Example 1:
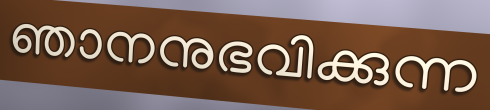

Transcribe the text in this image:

ഞാനനുഭവിക്കുന്ന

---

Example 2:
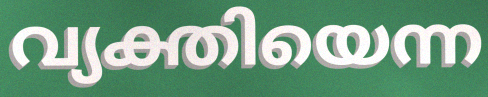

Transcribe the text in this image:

വ്യക്തിയെന്ന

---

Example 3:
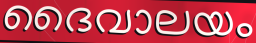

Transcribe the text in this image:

ദൈവാലയം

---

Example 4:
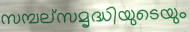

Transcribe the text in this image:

സമ്പല്സമൃദ്ധിയുടെയും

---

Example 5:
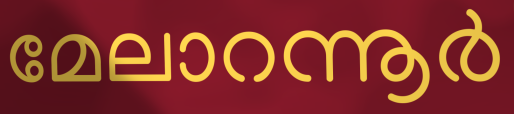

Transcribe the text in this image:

മേലാറന്നൂർ